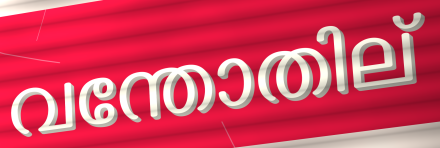
വന്തോതില്